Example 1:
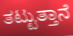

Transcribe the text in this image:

ತಟ್ಟುತ್ತಾನೆ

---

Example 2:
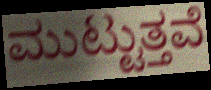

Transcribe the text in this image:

ಮುಟ್ಟುತ್ತವೆ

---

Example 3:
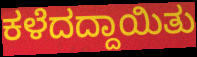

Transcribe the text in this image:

ಕಳೆದದ್ದಾಯಿತು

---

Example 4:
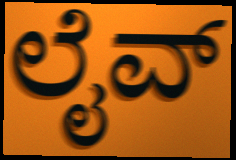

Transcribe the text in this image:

ಲೈವ್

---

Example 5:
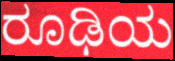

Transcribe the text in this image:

ರೂಢಿಯ